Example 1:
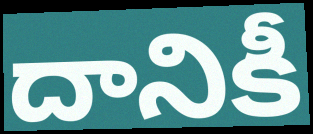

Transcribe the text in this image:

దానికీ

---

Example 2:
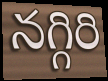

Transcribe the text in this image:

నగ్గిరి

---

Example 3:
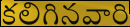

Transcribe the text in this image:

కలిగినవారి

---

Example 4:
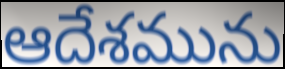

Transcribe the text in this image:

ఆదేశమును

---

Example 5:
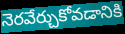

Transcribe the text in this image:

నెరవేర్చుకోవడానికి